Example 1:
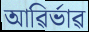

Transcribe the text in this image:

আৱিৰ্ভাৱ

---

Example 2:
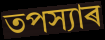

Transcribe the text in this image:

তপস্যাৰ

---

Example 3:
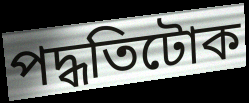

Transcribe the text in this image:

পদ্ধতিটোক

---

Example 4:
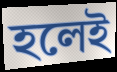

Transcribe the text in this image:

হলেই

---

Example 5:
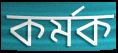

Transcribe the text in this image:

কৰ্মক